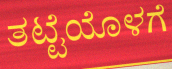
ತಟ್ಟೆಯೊಳಗೆ